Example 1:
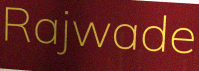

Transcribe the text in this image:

Rajwade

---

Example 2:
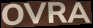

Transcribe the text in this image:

OVRA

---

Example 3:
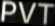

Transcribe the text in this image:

PVT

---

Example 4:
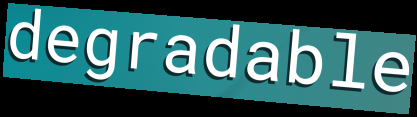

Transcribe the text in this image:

degradable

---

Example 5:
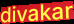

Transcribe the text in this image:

divakar